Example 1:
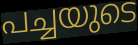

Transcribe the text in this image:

പച്ചയുടെ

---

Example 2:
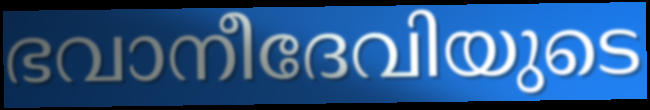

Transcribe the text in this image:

ഭവാനീദേവിയുടെ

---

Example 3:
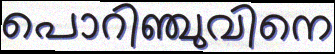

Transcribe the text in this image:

പൊറിഞ്ചുവിനെ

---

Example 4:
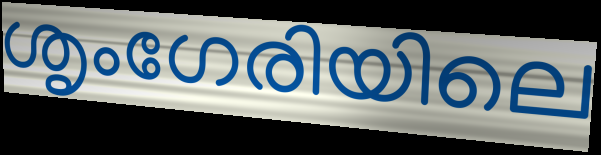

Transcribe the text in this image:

ശൃംഗേരിയിലെ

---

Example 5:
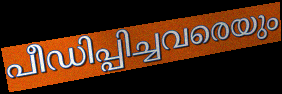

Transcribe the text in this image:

പീഡിപ്പിച്ചവരെയും